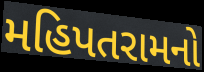
મહિપતરામનો